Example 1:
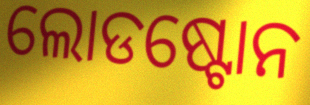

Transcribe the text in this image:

ଲୋଡଷ୍ଟୋନ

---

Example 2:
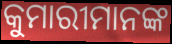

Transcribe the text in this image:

କୁମାରୀମାନଙ୍କ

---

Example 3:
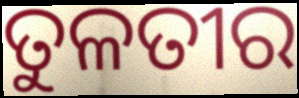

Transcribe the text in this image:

ତୁଳତୀର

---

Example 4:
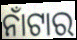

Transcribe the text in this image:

ନାଁଟାର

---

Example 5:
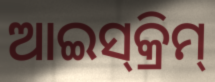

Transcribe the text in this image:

ଆଇସ୍‍କ୍ରିମ୍